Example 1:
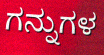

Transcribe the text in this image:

ಗನ್ನುಗಳ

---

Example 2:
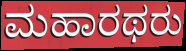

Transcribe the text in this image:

ಮಹಾರಥರು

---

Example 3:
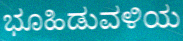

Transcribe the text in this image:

ಭೂಹಿಡುವಳಿಯ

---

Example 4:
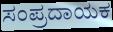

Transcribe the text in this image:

ಸಂಪ್ರದಾಯಕ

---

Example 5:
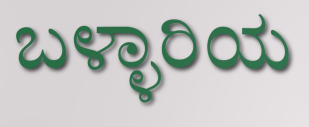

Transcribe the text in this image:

ಬಳ್ಳಾರಿಯ